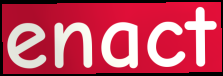
enact